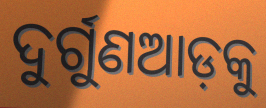
ଦୁର୍ଗୁଣଆଡ଼କୁ